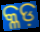
କ୍ଳଡ଼